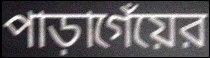
পাড়াগেঁয়ের